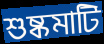
শুষ্কমাটি